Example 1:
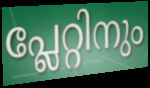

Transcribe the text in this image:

പ്ലേറ്റിനും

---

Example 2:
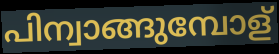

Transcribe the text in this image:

പിന്വാങ്ങുമ്പോള്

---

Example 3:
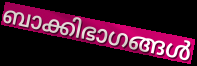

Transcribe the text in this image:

ബാക്കിഭാഗങ്ങൾ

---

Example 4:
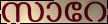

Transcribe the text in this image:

സാറേ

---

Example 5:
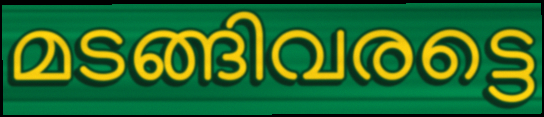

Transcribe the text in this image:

മടങ്ങിവരട്ടെ